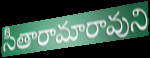
సీతారామారావుని